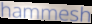
hammesh